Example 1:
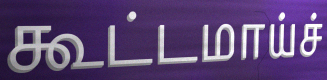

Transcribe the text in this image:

கூட்டமாய்ச்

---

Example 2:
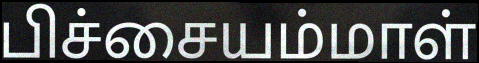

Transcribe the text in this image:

பிச்சையம்மாள்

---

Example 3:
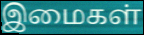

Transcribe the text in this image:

இமைகள்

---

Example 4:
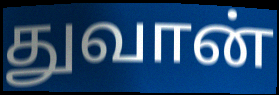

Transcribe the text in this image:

துவான்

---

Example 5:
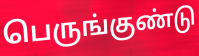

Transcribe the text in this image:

பெருங்குண்டு